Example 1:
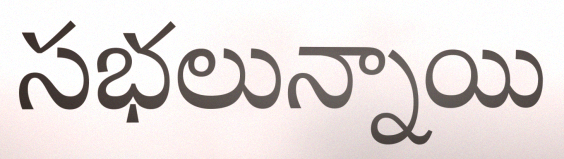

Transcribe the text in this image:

సభలున్నాయి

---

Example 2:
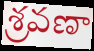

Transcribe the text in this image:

శ్రవణా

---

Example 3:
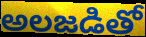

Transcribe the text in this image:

అలజడితో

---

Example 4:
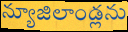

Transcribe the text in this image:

న్యూజిలాండ్లను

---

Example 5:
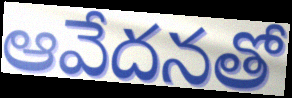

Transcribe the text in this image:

ఆవేదనతో